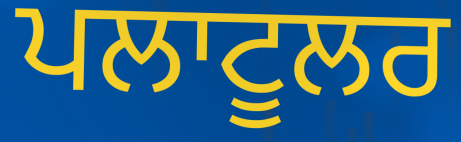
ਪਲਾਟੂਲਰ